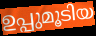
ഉപ്പുമൂടിയ